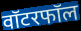
वॉटरफॉल